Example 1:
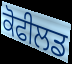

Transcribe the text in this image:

ਕੋਫੀਲਡ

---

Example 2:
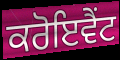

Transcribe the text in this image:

ਕਰੋਇਵੈਂਟ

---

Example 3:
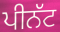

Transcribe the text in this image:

ਪੀਨੱਟ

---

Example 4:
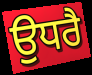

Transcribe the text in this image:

ਉਧਰੈ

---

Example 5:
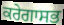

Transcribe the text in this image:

ਕਰੇਗਾਸਭ